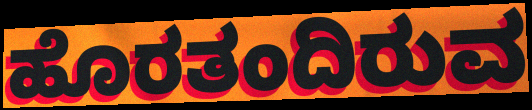
ಹೊರತಂದಿರುವ